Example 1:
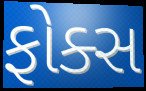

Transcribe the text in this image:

ફોક્સ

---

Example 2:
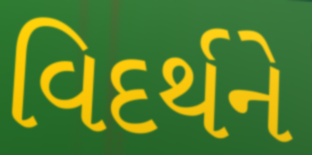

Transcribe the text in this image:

વિદર્થને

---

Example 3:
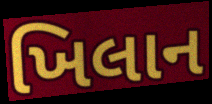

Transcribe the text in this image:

ખિલાન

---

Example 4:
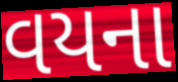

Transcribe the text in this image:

વયના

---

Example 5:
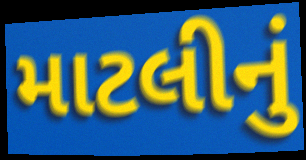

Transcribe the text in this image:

માટલીનું